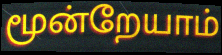
மூன்றேயாம்